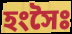
হংসৈঃ